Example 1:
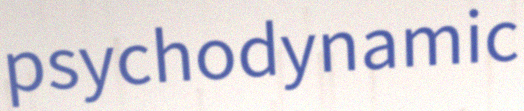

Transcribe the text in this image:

psychodynamic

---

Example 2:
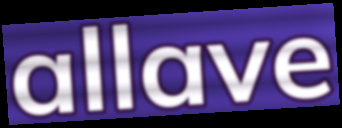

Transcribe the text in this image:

allave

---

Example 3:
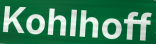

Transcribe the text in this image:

Kohlhoff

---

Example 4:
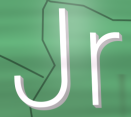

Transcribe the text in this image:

Jr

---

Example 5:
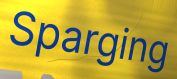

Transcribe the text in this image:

Sparging